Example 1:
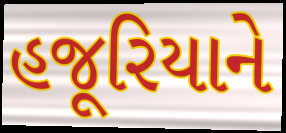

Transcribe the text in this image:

હજૂરિયાને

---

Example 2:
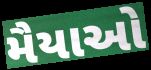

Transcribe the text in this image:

મૈયાઓ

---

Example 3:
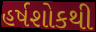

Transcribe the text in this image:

હર્ષશોકથી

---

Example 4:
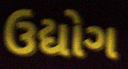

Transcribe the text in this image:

ઉદ્યોગ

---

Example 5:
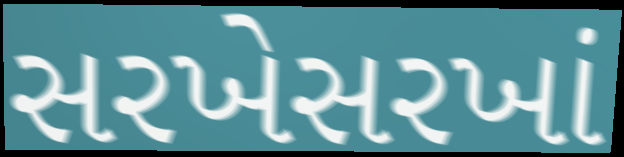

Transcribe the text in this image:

સરખેસરખાં